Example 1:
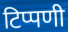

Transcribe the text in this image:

टिप्‍पणी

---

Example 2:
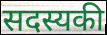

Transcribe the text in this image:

सदस्यकी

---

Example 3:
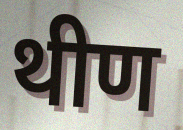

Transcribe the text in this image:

थीण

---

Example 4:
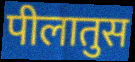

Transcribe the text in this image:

पीलातुस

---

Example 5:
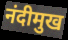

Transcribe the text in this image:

नंदीमुख